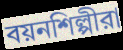
বয়নশিল্পীরা